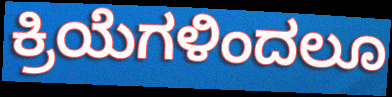
ಕ್ರಿಯೆಗಳಿಂದಲೂ